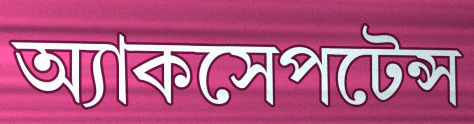
অ্যাকসেপটেন্স